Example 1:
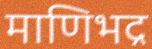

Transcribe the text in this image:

माणिभद्र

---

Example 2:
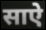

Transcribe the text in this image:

साऐ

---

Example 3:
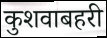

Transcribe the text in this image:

कुशवाबहरी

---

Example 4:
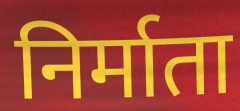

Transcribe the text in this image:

निर्माता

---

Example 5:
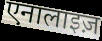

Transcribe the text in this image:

एनालाइज़